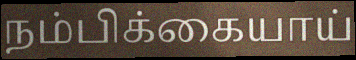
நம்பிக்கையாய்